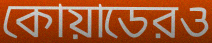
কোয়াডেরও